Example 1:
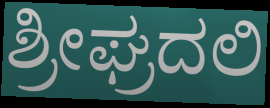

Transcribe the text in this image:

ಶ್ರೀಘ್ರದಲಿ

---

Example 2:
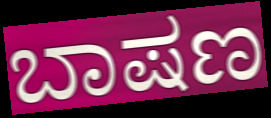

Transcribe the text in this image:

ಬಾಷಣ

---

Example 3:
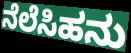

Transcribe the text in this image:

ನೆಲೆಸಿಹನು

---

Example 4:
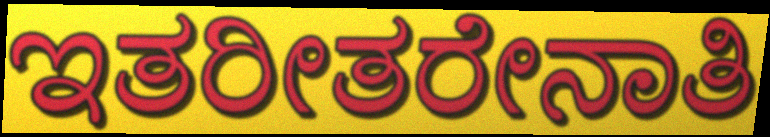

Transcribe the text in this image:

ಇತರೀತರೇನಾತಿ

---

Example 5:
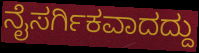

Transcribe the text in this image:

ನೈಸರ್ಗಿಕವಾದದ್ದು